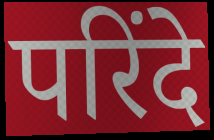
परिंदे